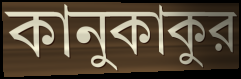
কানুকাকুর